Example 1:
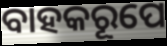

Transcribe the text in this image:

ବାହକରୂପେ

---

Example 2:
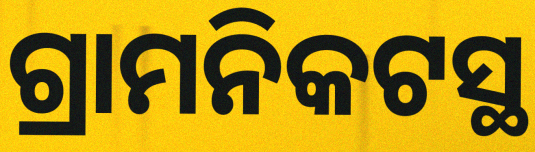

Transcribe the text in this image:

ଗ୍ରାମନିକଟସ୍ଥ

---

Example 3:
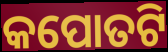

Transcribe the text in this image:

କପୋତଟି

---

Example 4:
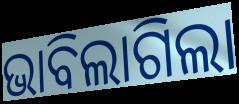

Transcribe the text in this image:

ଭାବିଲାଗିଲା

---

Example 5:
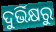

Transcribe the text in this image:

ଦୁର୍ଭିକ୍ଷରୁ